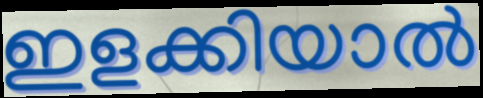
ഇളക്കിയാൽ